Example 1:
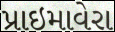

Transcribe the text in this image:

પ્રાઇમાવેરા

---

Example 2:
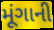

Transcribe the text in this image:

મૂંગાની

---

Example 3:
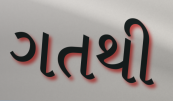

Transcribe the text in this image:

ગતથી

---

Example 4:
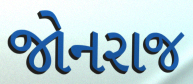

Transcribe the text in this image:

જોનરાજ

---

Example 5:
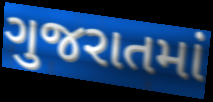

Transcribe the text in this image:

ગુજરાતમાં